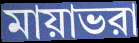
মায়াভরা